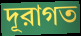
দূরাগত